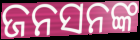
ଜନସନଙ୍କ